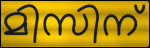
മിസിന്